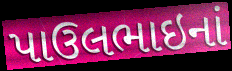
પાઉલભાઇનાં